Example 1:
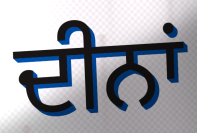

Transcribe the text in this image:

ਦੀਨਾਂ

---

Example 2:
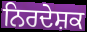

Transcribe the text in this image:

ਨਿਰਦੇਸ਼ਕ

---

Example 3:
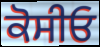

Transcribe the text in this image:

ਕੋਸੀਓ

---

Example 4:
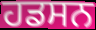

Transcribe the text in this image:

ਹਡਸਨ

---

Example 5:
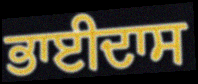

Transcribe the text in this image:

ਭਾਈਦਾਸ